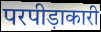
परपीड़ाकारी